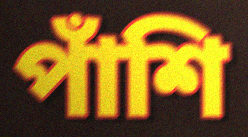
পাঁশি